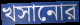
খসানোর